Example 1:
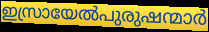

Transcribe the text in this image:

ഇസ്രായേൽപുരുഷന്മാർ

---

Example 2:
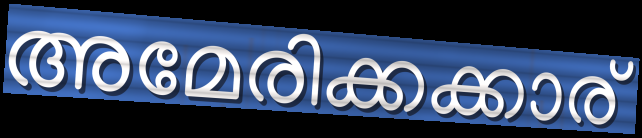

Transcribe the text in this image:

അമേരിക്കക്കാര്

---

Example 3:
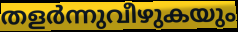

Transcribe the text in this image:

തളർന്നുവീഴുകയും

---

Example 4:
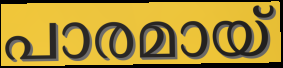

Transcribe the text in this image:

പാരമായ്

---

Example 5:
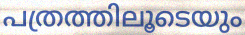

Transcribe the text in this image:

പത്രത്തിലൂടെയും